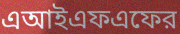
এআইএফএফের